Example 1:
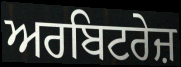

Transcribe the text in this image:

ਅਰਬਿਟਰੇਜ਼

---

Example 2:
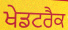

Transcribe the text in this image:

ਖੇਡਟਰੈਕ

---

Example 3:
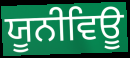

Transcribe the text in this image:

ਯੂਨੀਵਿਊ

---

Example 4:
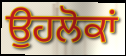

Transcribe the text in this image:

ਉਹਲੋਕਾਂ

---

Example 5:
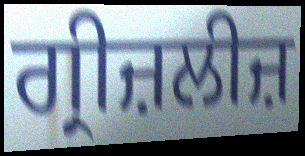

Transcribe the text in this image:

ਗ੍ਰੀਜ਼ਲੀਜ਼